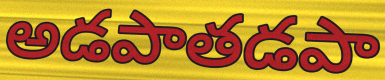
అడపాతడపా